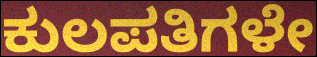
ಕುಲಪತಿಗಳೇ